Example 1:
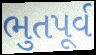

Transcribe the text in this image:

ભુતપૂર્વ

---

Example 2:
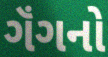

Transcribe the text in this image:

ગૅંગનો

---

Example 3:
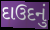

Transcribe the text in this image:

દાઉદનું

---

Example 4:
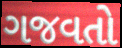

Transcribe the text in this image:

ગજવતો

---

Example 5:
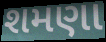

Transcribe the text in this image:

શમણા